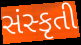
સંસ્કૃતી